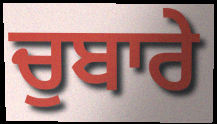
ਚੁਬਾਰੇ